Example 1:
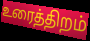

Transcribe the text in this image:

உரைத்திறம்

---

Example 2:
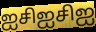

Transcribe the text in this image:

ஐசிஐசிஐ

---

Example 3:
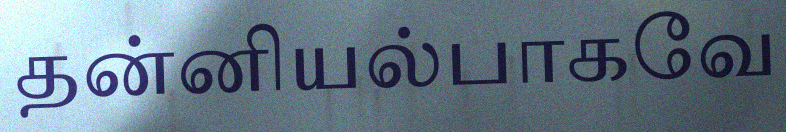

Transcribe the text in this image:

தன்னியல்பாகவே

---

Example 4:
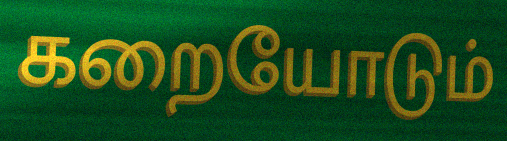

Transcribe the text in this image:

கறையோடும்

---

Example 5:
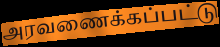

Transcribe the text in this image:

அரவணைக்கப்பட்டு